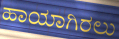
ಹಾಯಾಗಿರಲು